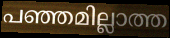
പഞ്ഞമില്ലാത്ത